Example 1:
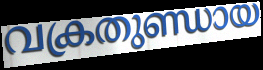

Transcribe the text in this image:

വക്രതുണ്ഡായ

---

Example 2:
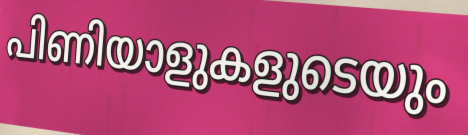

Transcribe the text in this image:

പിണിയാളുകളുടെയും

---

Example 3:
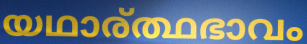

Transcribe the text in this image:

യഥാര്ത്ഥഭാവം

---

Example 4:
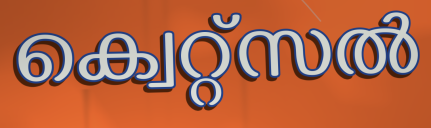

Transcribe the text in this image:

ക്വെറ്റ്സൽ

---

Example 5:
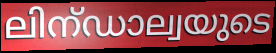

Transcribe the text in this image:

ലിന്ഡാല്വയുടെ